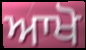
ਆਖੋ